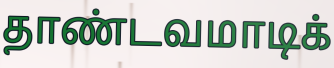
தாண்டவமாடிக்